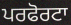
ਪਰਫੋਰਟਾ